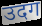
उदग